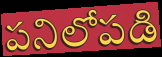
పనిలోపడి